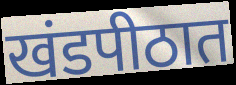
खंडपीठात